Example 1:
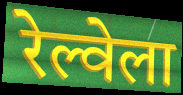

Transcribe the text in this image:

रेल्वेला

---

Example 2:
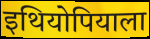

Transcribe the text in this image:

इथियोपियाला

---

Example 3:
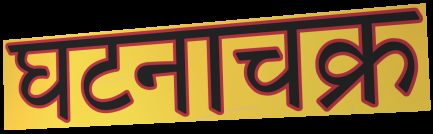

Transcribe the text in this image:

घटनाचक्र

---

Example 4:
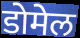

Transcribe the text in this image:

डोमेल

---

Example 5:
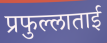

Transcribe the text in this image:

प्रफुल्लाताई